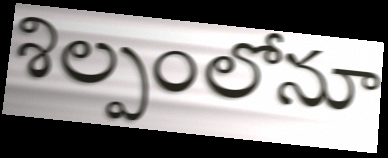
శిల్పంలోనూ